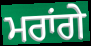
ਮਰਾਂਗੇ